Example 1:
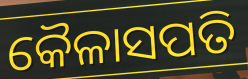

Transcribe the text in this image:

କୈଳାସପତି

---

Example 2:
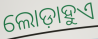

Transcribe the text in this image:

ଲୋଡ଼ାହୁଏ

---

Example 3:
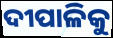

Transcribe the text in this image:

ଦୀପାଳିକୁ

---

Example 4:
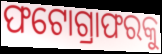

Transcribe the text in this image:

ଫଟୋଗ୍ରାଫରକୁ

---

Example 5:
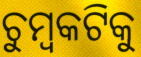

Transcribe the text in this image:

ଚୁମ୍ବକଟିକୁ